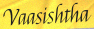
Vaasishtha